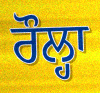
ਰੌਲ੍ਹਾ